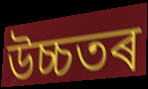
উচ্চতৰ